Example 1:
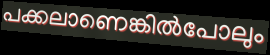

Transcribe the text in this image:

പക്കലാണെങ്കിൽപോലും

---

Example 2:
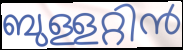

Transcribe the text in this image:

ബുള്ളറ്റിൻ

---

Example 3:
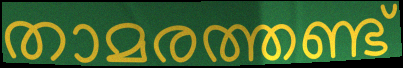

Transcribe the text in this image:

താമരത്തണ്ട്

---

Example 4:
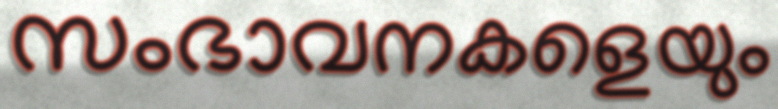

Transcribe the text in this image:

സംഭാവനകളെയും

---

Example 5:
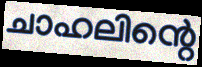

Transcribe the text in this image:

ചാഹലിന്റെ